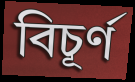
বিচূৰ্ণ